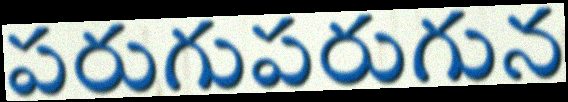
పరుగుపరుగున